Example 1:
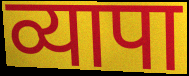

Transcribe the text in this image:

व्यापा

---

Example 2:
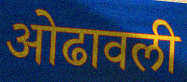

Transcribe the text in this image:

ओढावली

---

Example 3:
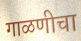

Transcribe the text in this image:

गाळणीचा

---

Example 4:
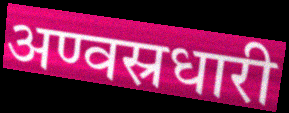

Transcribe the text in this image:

अण्वस्रधारी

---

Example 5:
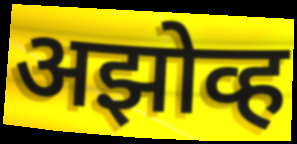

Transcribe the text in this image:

अझोव्ह